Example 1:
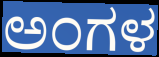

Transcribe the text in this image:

ಅಂಗಳ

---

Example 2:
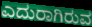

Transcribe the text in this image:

ಎದುರಾಗಿರುವ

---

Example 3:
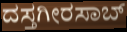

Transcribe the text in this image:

ದಸ್ತಗೀರಸಾಬ್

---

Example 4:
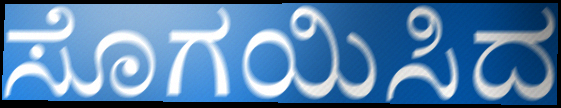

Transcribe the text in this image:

ಸೊಗಯಿಸಿದ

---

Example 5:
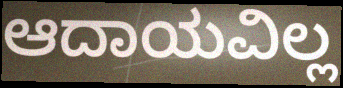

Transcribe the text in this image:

ಆದಾಯವಿಲ್ಲ